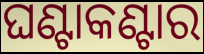
ଘଣ୍ଟାକଣ୍ଟାର